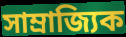
সাম্ৰাজ্যিক